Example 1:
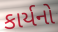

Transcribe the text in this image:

કાર્યનો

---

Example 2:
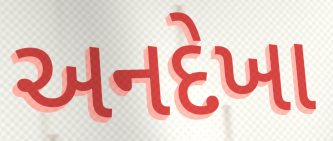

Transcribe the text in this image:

અનદેખા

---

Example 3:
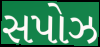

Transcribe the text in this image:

સપોઝ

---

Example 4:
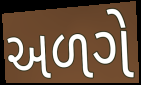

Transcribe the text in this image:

અળગે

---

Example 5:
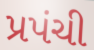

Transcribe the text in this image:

પ્રપંચી